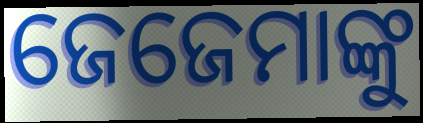
ଜେଜେମାଙ୍କୁ